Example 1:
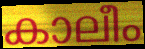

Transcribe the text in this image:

കാലീം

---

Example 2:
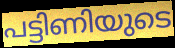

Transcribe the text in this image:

പട്ടിണിയുടെ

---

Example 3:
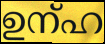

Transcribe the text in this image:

ഉന്ഹ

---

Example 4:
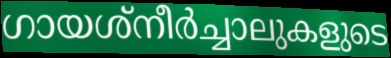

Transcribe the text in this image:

ഗായശ്നീർച്ചാലുകളുടെ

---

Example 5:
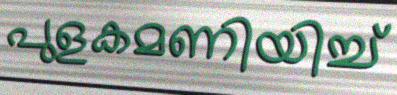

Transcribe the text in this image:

പുളകമണിയിച്ച്